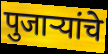
पुजाऱ्यांचे